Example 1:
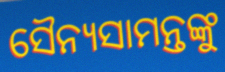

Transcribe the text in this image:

ସୈନ୍ୟସାମନ୍ତଙ୍କୁ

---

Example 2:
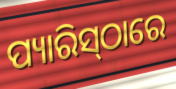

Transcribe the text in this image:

ପ୍ୟାରିସ୍‍ଠାରେ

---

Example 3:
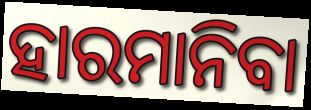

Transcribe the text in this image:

ହାରମାନିବା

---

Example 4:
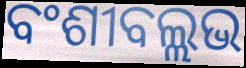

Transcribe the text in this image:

ବଂଶୀବଲ୍ଲଭ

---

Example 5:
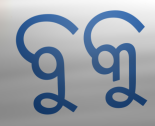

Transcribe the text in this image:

ବୁକୁ